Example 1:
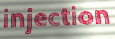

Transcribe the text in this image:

injection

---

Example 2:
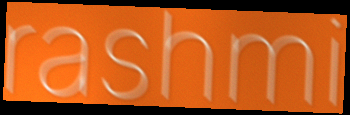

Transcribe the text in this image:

rashmi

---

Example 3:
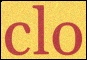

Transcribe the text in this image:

clo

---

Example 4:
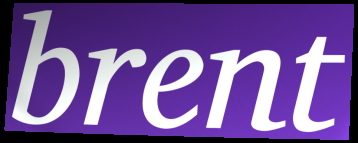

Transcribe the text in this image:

brent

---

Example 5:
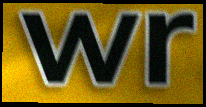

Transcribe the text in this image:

wr